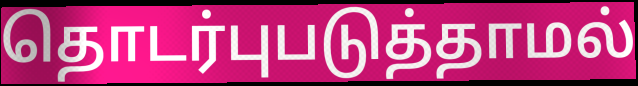
தொடர்புபடுத்தாமல்